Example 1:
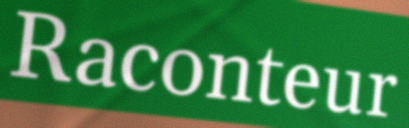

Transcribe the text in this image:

Raconteur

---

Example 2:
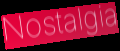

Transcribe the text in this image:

Nostalgia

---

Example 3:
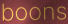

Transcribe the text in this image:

boons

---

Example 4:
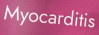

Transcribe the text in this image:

Myocarditis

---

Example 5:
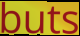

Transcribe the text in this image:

buts